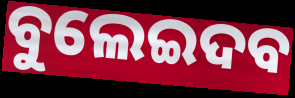
ବୁଲେଇଦବ